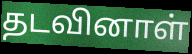
தடவினாள்